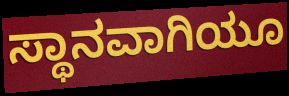
ಸ್ಥಾನವಾಗಿಯೂ